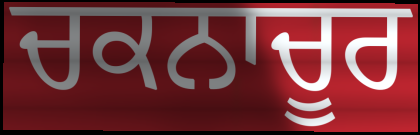
ਚਕਨਾਚੂਰ